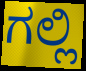
ಗಲ್ಲಿ